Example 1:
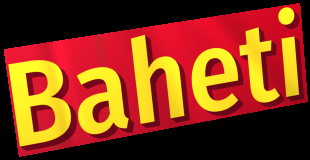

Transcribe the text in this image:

Baheti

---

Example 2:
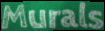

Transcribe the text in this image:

Murals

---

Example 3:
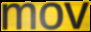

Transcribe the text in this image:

mov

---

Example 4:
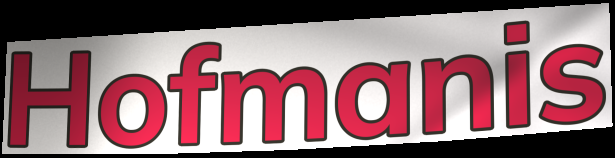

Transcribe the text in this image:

Hofmanis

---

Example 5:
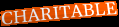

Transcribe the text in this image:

CHARITABLE